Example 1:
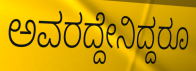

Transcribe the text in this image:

ಅವರದ್ದೇನಿದ್ದರೂ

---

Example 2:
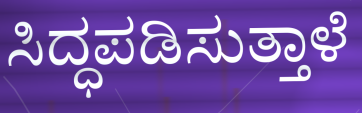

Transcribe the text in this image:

ಸಿದ್ಧಪಡಿಸುತ್ತಾಳೆ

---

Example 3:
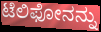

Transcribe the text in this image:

ಟೆಲಿಫೋನನ್ನು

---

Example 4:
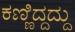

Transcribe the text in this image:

ಕಣ್ಣಿದ್ದದ್ದು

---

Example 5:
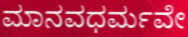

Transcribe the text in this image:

ಮಾನವಧರ್ಮವೇ